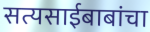
सत्यसाईबाबांचा